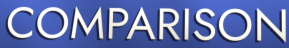
COMPARISON